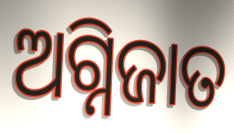
ଅଗ୍ନିଜାତ